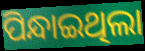
ପିନ୍ଧାଇଥିଲା